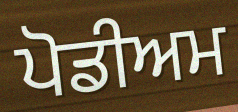
ਪੋਡੀਅਮ